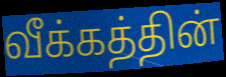
வீக்கத்தின்